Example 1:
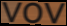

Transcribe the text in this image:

vov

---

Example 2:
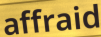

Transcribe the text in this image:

affraid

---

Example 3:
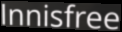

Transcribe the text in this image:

Innisfree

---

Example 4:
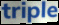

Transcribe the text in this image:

triple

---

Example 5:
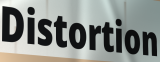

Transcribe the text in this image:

Distortion